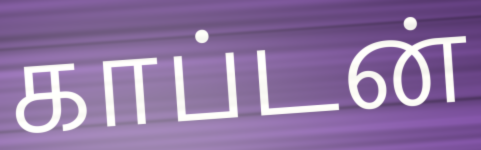
காப்டன்